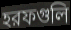
হরফগুলি